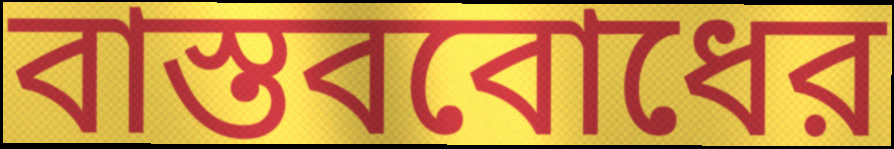
বাস্তববোধের